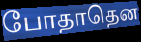
போதாதென